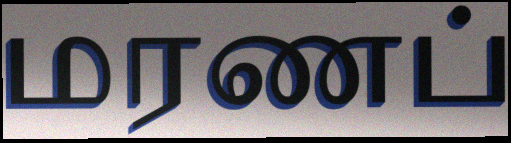
மரணப்